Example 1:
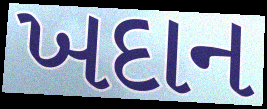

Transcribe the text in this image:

ખદાન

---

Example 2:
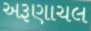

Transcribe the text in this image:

અરૂણાચલ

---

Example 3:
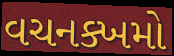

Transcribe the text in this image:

વચનક્ખમો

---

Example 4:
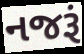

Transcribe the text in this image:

નજરૂં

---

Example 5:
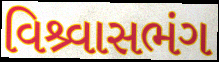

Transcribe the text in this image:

વિશ્ર્વાસભંગ